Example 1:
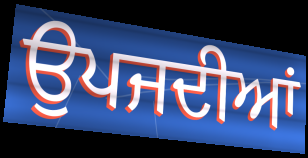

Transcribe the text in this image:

ਉਪਜਦੀਆਂ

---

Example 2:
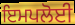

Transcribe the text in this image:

ਇਮਪਲੋਈ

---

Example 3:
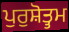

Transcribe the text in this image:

ਪੁਰੁਸ਼ੋਤ੍ਤਮ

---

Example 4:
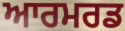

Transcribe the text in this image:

ਆਰਮਰਡ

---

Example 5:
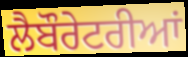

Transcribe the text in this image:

ਲੈਬੌਰੇਟਰੀਆਂ